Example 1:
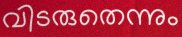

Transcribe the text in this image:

വിടരുതെന്നും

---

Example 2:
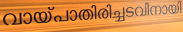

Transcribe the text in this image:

വായ്പാതിരിച്ചടവിനായി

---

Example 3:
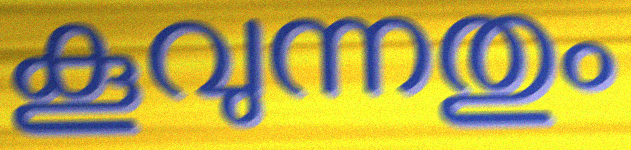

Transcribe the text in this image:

കൂവുന്നതും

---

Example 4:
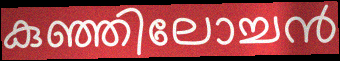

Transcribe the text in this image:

കുഞ്ഞിലോച്ചൻ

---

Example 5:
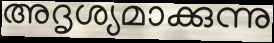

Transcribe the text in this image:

അദൃശ്യമാക്കുന്നു